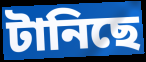
টানিছে